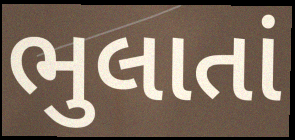
ભુલાતાં